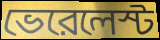
ভেরেলেস্ট